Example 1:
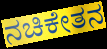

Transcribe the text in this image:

ನಚಿಕೇತನ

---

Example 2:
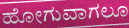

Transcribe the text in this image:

ಹೋಗುವಾಗಲೂ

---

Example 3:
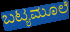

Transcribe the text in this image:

ಬಟ್ಯಮೂಲೆ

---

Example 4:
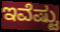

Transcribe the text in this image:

ಇವೆಷ್ಟು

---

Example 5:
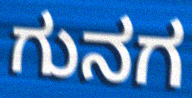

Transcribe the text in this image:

ಗುನಗ